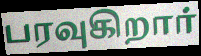
பரவுகிறார்